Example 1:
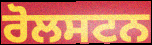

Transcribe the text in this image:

ਰੋਲਸਟਨ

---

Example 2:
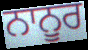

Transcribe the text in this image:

ਨਾਨੂਰ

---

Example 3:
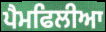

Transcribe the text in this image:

ਪੈਮਫਿਲੀਆ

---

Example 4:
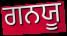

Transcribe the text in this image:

ਗਨਯੂ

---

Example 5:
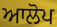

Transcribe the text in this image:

ਆਲੋਪ